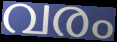
വരം